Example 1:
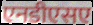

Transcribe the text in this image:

एनडीएसए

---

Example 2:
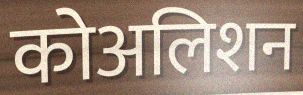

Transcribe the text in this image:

कोअलिशन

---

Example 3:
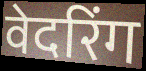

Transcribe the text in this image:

वेदरिंग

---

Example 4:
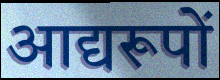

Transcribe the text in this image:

आद्यरूपों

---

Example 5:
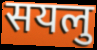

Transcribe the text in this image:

सयलु